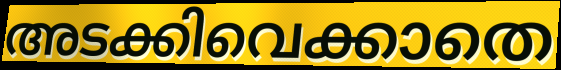
അടക്കിവെക്കാതെ